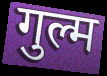
गुल्म